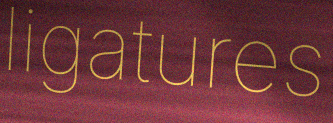
ligatures